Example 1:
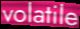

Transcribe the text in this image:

volatile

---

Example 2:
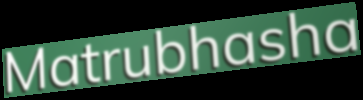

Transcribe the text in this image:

Matrubhasha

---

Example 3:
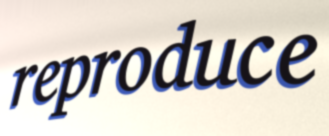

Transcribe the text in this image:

reproduce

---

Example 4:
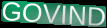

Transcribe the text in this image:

GOVIND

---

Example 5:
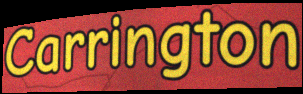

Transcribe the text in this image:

Carrington